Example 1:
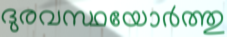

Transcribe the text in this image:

ദുരവസ്ഥയോർത്തു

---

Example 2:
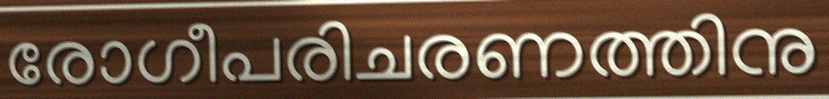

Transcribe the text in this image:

രോഗീപരിചരണത്തിനു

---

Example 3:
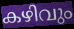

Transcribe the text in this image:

കഴിവും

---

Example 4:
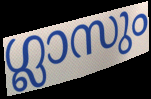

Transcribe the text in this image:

ഗ്ലാസും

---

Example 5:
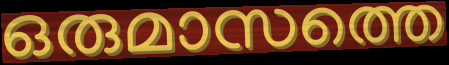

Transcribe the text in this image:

ഒരുമാസത്തെ